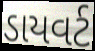
ડાયવર્ટ